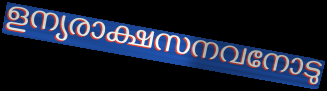
ളന്യരാക്ഷസനവനോടു